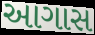
આગાસ